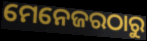
ମେନେଜରଠାରୁ